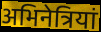
अभिनेत्रियां